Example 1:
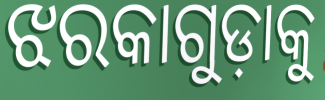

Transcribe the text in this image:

ଝରକାଗୁଡ଼ାକୁ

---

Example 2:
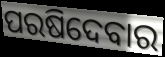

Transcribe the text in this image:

ପରଷିଦେବାର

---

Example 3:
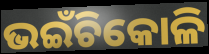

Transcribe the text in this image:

ଭଇଁଚିକୋଳି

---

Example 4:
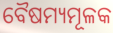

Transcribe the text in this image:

ବୈଷମ୍ୟମୂଳକ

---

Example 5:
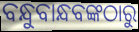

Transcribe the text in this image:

ବନ୍ଧୁବାନ୍ଧବଙ୍କଠାରୁ